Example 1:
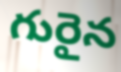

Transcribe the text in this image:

గురైన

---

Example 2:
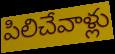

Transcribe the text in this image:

పిలిచేవాళ్లు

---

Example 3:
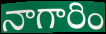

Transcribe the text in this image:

నాగారిం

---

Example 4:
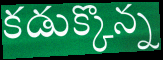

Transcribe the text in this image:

కడుక్కొన్న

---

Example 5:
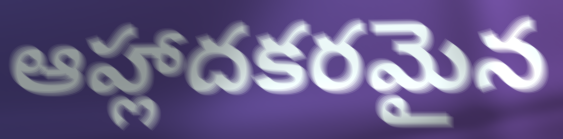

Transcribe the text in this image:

ఆహ్లాదకరమైన